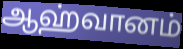
ஆஹ்வானம்